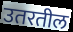
उतरतील